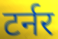
टर्नर